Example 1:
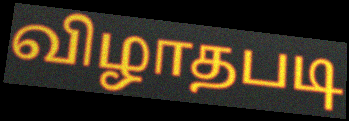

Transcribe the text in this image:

விழாதபடி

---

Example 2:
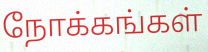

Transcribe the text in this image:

நோக்கங்கள்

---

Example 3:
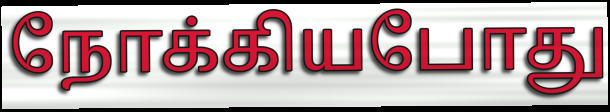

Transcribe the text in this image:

நோக்கியபோது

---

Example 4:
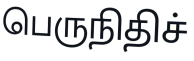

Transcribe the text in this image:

பெருநிதிச்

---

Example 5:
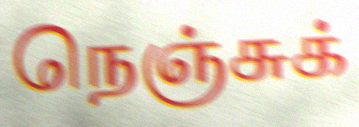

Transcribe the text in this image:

நெஞ்சுக்